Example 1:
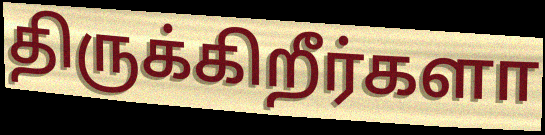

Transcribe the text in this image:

திருக்கிறீர்களா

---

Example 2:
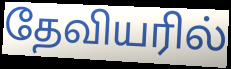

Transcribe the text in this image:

தேவியரில்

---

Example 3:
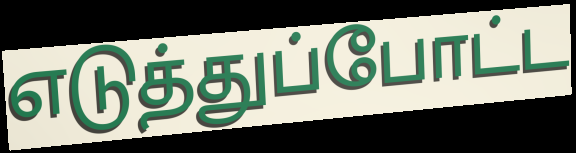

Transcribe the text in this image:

எடுத்துப்போட்ட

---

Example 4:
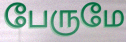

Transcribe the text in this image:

பேருமே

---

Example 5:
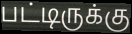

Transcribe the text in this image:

பட்டிருக்கு